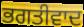
ਭਗਤੀਵਾਦ